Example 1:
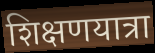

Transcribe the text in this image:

शिक्षणयात्रा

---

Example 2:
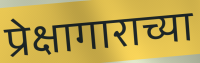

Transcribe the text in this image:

प्रेक्षागाराच्या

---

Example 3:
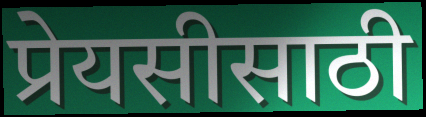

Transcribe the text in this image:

प्रेयसीसाठी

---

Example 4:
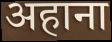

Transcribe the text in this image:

अहाना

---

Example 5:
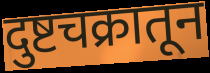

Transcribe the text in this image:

दुष्टचक्रातून